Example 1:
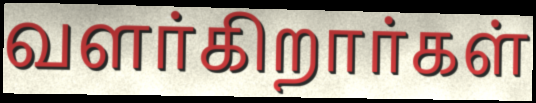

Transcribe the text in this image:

வளர்கிறார்கள்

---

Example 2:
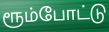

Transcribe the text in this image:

ரூம்போட்டு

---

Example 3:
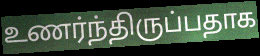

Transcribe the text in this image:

உணர்ந்திருப்பதாக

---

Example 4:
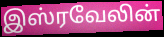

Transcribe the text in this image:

இஸ்ரவேலின்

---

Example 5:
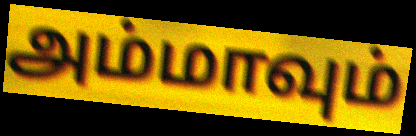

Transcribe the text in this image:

அம்மாவும்